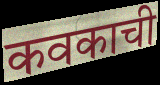
कवकाची